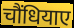
चौंधियाए